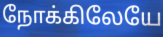
நோக்கிலேயே